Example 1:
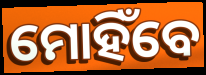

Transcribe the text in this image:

ମୋହିଁବେ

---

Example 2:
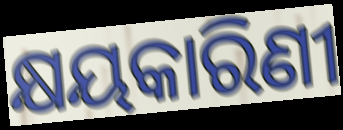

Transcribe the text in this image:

କ୍ଷୟକାରିଣୀ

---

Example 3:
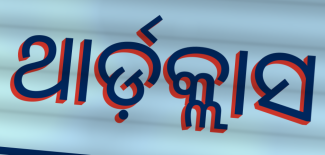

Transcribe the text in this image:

ଥାର୍ଡ଼କ୍ଲାସ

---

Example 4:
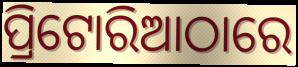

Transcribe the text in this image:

ପ୍ରିଟୋରିଆଠାରେ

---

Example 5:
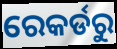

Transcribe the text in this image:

ରେକର୍ଡରୁ